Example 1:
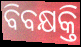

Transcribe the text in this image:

ବିବକ୍ଷକ୍ତି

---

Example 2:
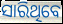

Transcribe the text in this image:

ସାରିଥିବେ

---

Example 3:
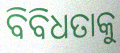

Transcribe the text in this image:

ବିବିଧତାକୁ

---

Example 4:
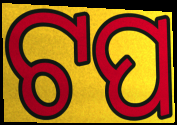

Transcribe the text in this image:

ଟପ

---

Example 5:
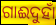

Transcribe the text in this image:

ଗାଈଦୁହାଁ